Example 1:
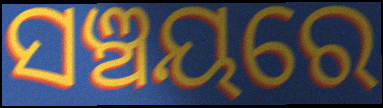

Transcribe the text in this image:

ସଞ୍ଚୟରେ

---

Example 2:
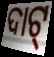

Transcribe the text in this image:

ଦାଟ୍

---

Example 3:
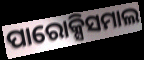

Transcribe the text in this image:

ପାରୋକ୍ସିସମାଲ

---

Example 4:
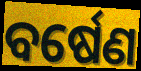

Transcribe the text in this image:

ବର୍ଷେଣ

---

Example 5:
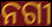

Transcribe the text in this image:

ନଗୀ